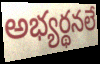
అభ్యర్థనలే